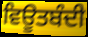
ਵਿਊਤਬੰਦੀ